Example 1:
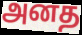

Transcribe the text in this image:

அனத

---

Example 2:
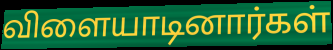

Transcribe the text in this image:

விளையாடினார்கள்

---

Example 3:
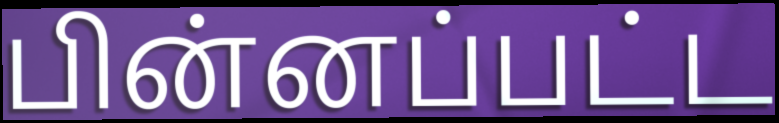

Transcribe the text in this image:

பின்னப்பட்ட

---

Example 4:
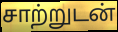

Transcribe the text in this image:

சாற்றுடன்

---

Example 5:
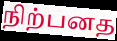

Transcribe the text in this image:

நிற்பனத